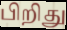
பிறிது